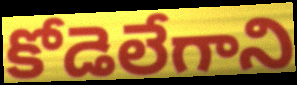
కోడెలేగాని